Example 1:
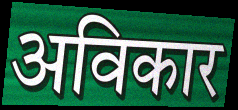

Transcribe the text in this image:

अविकार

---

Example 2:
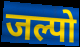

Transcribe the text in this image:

जल्पो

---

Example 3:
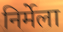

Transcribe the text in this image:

निर्मेला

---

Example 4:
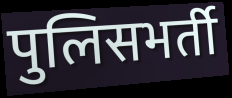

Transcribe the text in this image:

पुलिसभर्ती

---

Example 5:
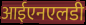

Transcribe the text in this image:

आईएनएलडी